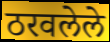
ठरवलेले